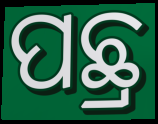
ପଛ୍ର